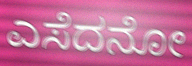
ಎಸೆದನೋ